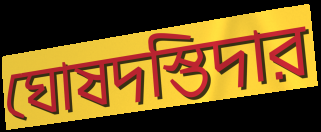
ঘোষদস্তিদার